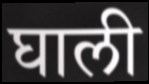
घाली